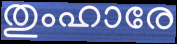
തുംഹാരേ